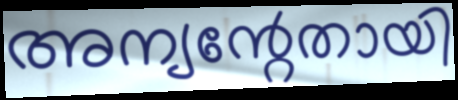
അന്യന്റേതായി